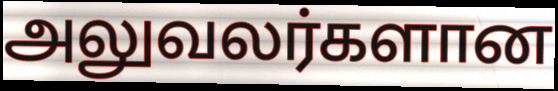
அலுவலர்களான